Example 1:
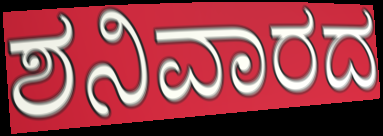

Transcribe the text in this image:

ಶನಿವಾರದ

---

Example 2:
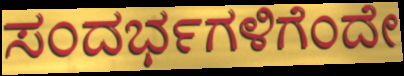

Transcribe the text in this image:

ಸಂದರ್ಭಗಳಿಗೆಂದೇ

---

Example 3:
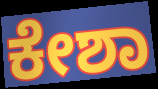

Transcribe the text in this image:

ಕೇಶಾ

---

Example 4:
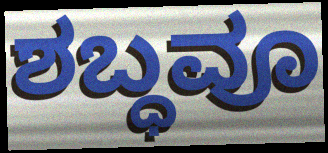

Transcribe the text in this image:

ಶಬ್ಧವೂ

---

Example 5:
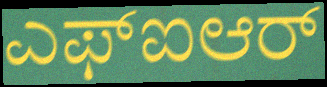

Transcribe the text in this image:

ಎಫ್ಐಆರ್